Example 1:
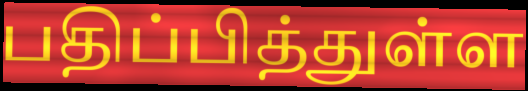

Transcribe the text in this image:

பதிப்பித்துள்ள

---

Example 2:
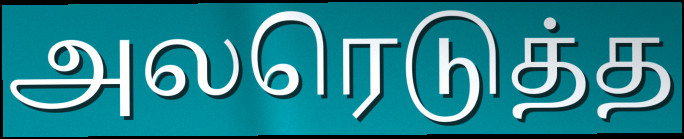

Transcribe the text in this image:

அலரெடுத்த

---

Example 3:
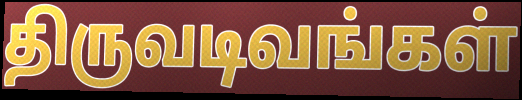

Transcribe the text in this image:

திருவடிவங்கள்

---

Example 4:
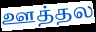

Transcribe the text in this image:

ஊத்தல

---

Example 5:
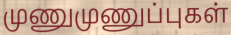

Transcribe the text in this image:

முணுமுணுப்புகள்